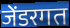
जेंडरगत